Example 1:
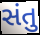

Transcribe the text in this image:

સંતુ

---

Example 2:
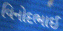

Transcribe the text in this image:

વિનોદભાઈ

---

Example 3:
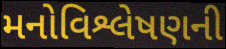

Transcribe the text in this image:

મનોવિશ્લેષણની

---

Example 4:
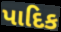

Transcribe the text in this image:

પાદિક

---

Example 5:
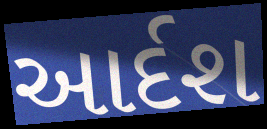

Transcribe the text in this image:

આર્દશ